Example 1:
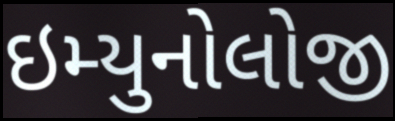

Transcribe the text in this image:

ઇમ્યુનોલોજી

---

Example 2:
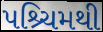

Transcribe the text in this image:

પશ્ર્ચિમથી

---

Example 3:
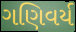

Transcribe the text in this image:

ગણિવર્ય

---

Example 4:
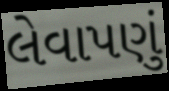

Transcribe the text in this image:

લેવાપણું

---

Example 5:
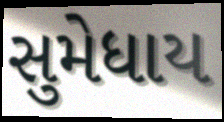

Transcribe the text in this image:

સુમેધાય